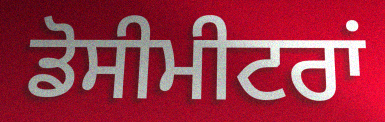
ਡੋਸੀਮੀਟਰਾਂ